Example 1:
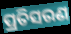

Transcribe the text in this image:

ପ୍ରତିସରଣ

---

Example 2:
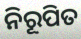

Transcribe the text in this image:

ନିରୂପିତ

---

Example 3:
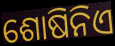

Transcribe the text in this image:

ଶୋଷିନିଏ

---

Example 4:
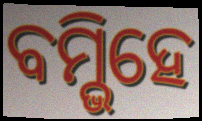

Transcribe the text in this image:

ବମ୍ଭିହେ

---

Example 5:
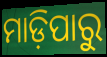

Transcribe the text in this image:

ମାଡ଼ିପାରୁ